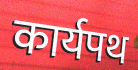
कार्यपथ